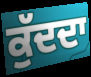
ਕੁੱਦਦਾ